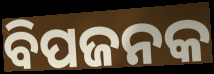
ବିପଜନକ